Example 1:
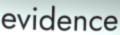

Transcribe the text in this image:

evidence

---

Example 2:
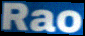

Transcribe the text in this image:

Rao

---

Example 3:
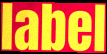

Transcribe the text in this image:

label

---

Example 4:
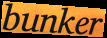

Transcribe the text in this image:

bunker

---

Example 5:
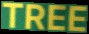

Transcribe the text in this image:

TREE